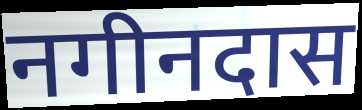
नगीनदास